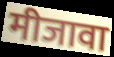
मीजावा